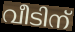
വീടിന്